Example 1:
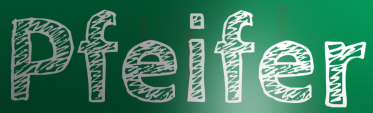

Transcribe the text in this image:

Pfeifer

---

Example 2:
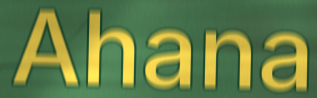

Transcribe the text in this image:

Ahana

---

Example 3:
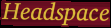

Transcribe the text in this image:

Headspace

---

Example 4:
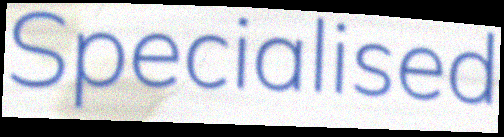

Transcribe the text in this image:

Specialised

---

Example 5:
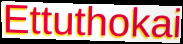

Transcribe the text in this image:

Ettuthokai